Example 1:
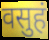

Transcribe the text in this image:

वसुहं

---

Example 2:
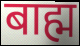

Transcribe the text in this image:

बाह्म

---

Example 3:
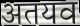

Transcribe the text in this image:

अतयव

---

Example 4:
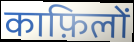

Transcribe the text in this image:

काफ़िलों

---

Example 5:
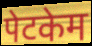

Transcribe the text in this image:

पेटकेम